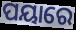
ପୟାରେ